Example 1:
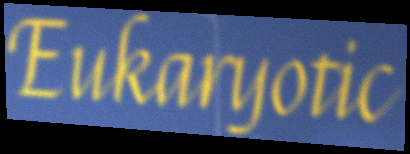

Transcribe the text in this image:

Eukaryotic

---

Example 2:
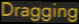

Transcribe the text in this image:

Dragging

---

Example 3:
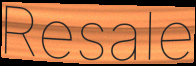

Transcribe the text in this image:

Resale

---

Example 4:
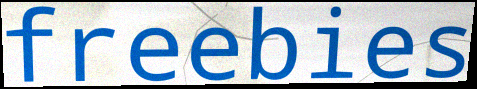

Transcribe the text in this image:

freebies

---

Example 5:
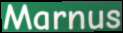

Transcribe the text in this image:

Marnus